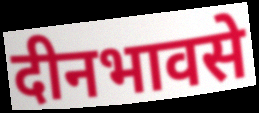
दीनभावसे